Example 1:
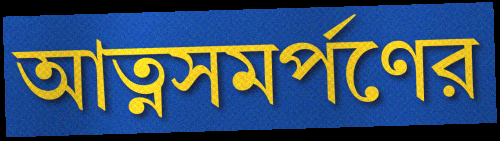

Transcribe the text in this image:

আত্নসমর্পণের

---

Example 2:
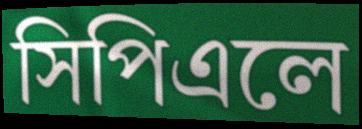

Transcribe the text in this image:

সিপিএলে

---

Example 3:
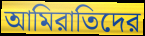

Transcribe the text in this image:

আমিরাতিদের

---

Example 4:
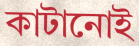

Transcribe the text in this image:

কাটানোই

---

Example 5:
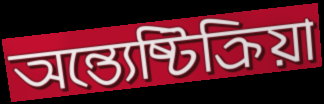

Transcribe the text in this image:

অন্ত্যেষ্টিক্রিয়া